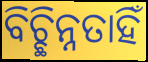
ବିଚ୍ଛିନ୍ନତାହିଁ